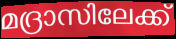
മദ്രാസിലേക്ക്